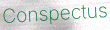
Conspectus